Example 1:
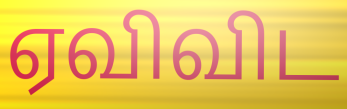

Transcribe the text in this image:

ஏவிவிட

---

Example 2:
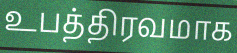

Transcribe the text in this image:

உபத்திரவமாக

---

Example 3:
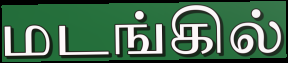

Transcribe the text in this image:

மடங்கில்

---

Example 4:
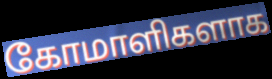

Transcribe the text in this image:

கோமாளிகளாக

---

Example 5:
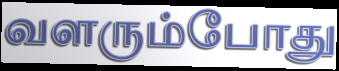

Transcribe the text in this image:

வளரும்போது